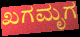
ಖಗಮೃಗ